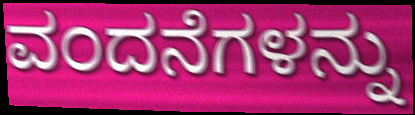
ವಂದನೆಗಳನ್ನು